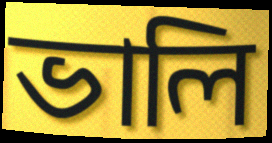
ভালি